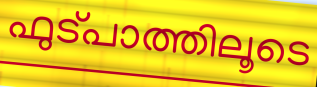
ഫുട്പാത്തിലൂടെ